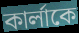
কার্লাকে